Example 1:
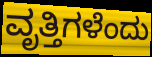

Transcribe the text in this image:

ವೃತ್ತಿಗಳೆಂದು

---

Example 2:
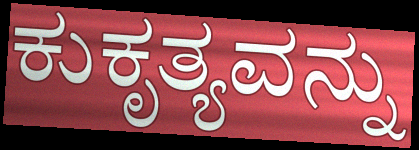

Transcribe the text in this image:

ಕುಕೃತ್ಯವನ್ನು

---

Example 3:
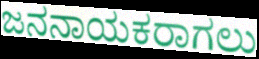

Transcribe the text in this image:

ಜನನಾಯಕರಾಗಲು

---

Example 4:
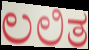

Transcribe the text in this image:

ಲಲಿತ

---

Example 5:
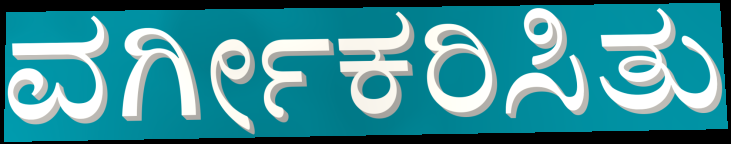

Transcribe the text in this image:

ವರ್ಗೀಕರಿಸಿತು